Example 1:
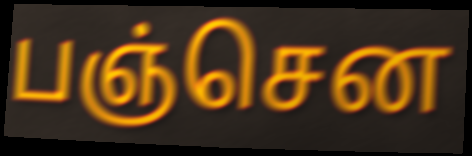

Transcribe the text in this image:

பஞ்சென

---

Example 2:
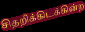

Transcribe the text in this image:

சிதறிக்கிடக்கின்ற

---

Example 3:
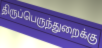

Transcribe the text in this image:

திருப்பெருந்துறைக்கு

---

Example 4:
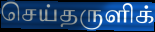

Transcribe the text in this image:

செய்தருளிக்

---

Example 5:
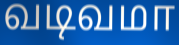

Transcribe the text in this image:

வடிவமா